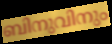
ബിനുവിനും